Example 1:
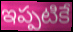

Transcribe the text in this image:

ఇప్పటికే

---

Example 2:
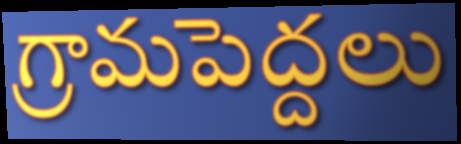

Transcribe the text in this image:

గ్రామపెద్దలు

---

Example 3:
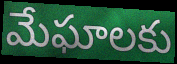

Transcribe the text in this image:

మేఘాలకు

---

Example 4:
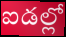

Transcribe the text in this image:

ఐడల్లో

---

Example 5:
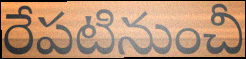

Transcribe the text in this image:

రేపటినుంచీ